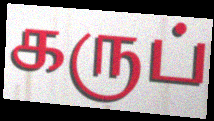
கருப்